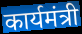
कार्यमंत्री